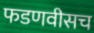
फडणवीसच